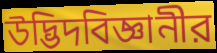
উদ্ভিদবিজ্ঞানীর